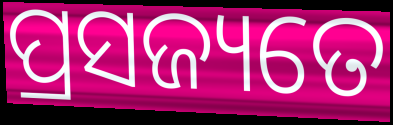
ପ୍ରସଜ୍ୟତେ